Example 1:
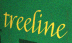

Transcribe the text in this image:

treeline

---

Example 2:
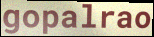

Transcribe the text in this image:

gopalrao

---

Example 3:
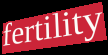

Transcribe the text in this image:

fertility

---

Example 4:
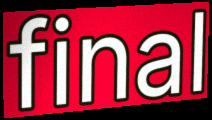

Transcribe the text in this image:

final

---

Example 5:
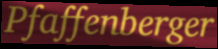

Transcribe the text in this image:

Pfaffenberger